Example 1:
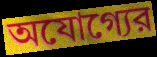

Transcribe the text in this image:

অযোগ্যের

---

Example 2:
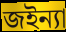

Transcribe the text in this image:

জইন্যা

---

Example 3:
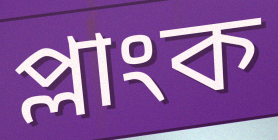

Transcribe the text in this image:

প্লাংক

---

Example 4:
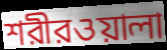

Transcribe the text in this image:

শরীরওয়ালা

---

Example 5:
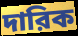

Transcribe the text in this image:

দারিক